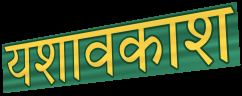
यशावकाश